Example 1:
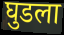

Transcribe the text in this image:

घुडला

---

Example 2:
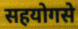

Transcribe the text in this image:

सहयोगसे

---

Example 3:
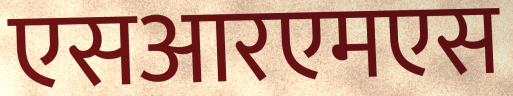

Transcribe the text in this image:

एसआरएमएस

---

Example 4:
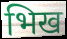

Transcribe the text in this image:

भिख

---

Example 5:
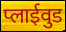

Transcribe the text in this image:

प्‍लाईवुड